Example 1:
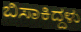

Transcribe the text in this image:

ಬಿಸಾಕಿದ್ದಳು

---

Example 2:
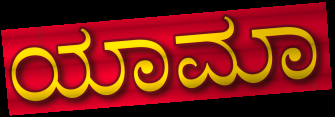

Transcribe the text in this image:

ಯಾಮಾ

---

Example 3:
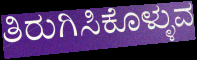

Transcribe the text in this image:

ತಿರುಗಿಸಿಕೊಳ್ಳುವ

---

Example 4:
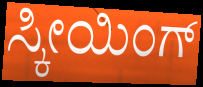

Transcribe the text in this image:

ಸ್ಕೀಯಿಂಗ್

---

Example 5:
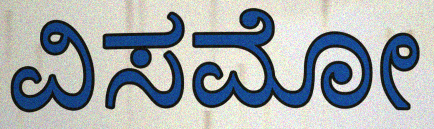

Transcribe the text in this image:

ವಿಸಮೋ